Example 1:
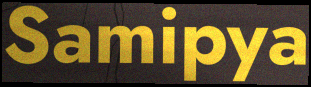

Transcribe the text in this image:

Samipya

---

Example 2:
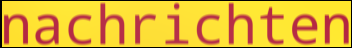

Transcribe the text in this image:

nachrichten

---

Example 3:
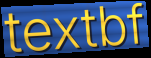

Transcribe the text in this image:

textbf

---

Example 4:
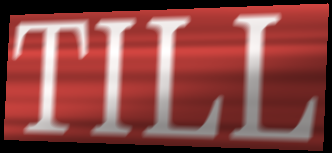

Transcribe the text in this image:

TILL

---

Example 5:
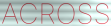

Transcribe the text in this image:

ACROSS